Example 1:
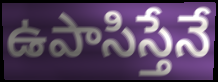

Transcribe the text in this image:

ఉపాసిస్తేనే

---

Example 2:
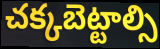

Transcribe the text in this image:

చక్కబెట్టాల్సి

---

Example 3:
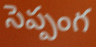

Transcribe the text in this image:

సెప్పంగ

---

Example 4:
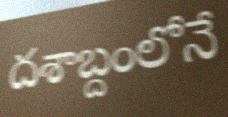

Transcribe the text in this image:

దశాబ్దంలోనే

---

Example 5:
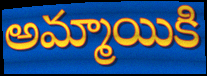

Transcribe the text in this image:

అమ్మాయికి